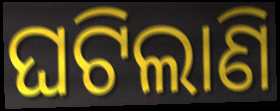
ଘଟିଲାଣି